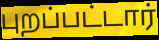
புறப்பட்டார்